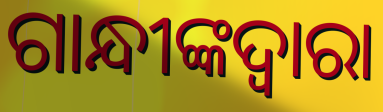
ଗାନ୍ଧୀଙ୍କଦ୍ଵାରା